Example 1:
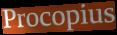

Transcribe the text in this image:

Procopius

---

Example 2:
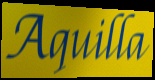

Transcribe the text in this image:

Aquilla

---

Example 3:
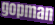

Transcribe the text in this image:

gopman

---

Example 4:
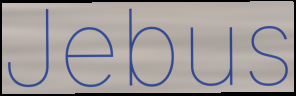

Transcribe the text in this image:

Jebus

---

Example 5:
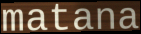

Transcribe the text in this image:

matana